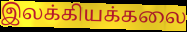
இலக்கியக்கலை